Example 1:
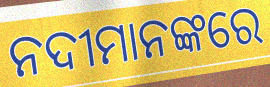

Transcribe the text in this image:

ନଦୀମାନଙ୍କରେ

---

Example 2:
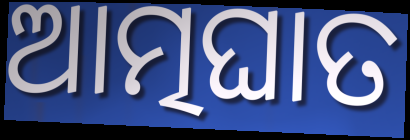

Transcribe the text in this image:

ଆତ୍ମଘାତ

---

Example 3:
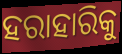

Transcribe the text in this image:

ହରାହାରିକୁ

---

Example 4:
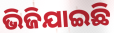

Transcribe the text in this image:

ଭିଜିଯାଇଛି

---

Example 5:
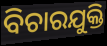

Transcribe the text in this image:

ବିଚାରଯୁକ୍ତି